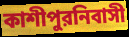
কাশীপুরনিবাসী